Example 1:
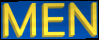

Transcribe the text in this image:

MEN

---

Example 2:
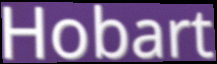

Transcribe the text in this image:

Hobart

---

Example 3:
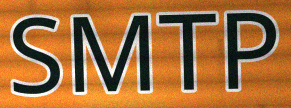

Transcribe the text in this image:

SMTP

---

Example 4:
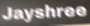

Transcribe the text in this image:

Jayshree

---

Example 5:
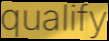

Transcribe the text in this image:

qualify